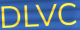
DLVC